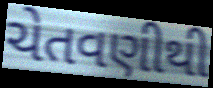
ચેતવણીથી